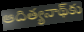
ఆదిత్యనాథ్‌కు